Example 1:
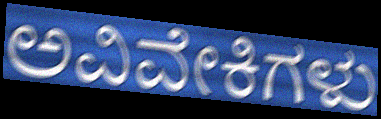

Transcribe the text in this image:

ಅವಿವೇಕಿಗಳು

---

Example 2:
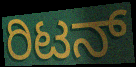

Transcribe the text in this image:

ರಿಟನ್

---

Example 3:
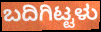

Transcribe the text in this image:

ಬದಿಗಿಟ್ಟಳು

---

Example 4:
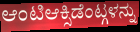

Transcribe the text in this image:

ಆಂಟಿಆಕ್ಸಿಡೆಂಟ್ಗಳನ್ನು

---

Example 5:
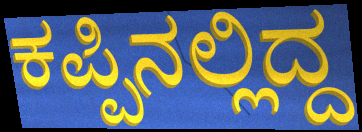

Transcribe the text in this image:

ಕಪ್ಪಿನಲ್ಲಿದ್ದ